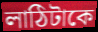
লাঠিটাকে